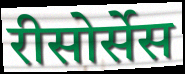
रीसोर्सेस